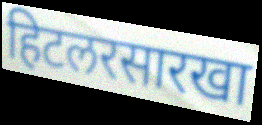
हिटलरसारखा